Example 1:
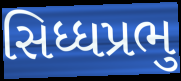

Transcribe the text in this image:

સિધ્ધપ્રભુ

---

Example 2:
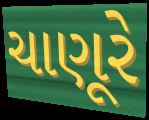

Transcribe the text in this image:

ચાણૂરે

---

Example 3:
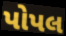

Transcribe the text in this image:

પોપલ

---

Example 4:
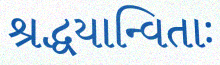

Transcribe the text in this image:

શ્રદ્ધયાન્વિતાઃ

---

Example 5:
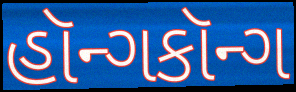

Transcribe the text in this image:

હૉન્ગકૉન્ગ